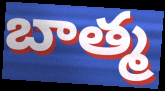
బాత్మ